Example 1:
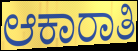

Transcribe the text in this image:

ಆಕಾರಾತಿ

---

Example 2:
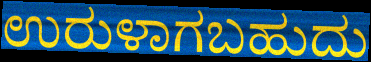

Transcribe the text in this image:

ಉರುಳಾಗಬಹುದು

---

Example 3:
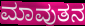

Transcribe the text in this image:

ಮಾವುತನ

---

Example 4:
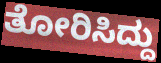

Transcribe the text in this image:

ತೋರಿಸಿದ್ದು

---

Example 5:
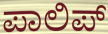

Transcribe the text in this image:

ಪಾಲಿಪ್